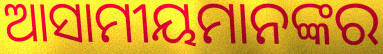
ଆସାମୀୟମାନଙ୍କର